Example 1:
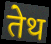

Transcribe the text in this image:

तेथ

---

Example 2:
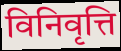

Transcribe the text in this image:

विनिवृत्ति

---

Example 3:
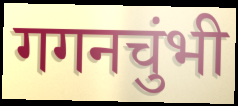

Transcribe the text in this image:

गगनचुंभी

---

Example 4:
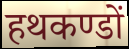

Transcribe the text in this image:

हथकण्डों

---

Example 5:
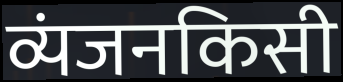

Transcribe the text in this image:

व्यंजनकिसी